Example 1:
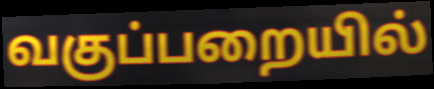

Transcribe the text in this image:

வகுப்பறையில்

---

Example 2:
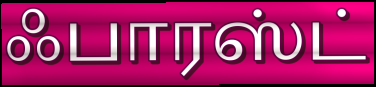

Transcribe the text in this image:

ஃபாரஸ்ட்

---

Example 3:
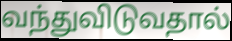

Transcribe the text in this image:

வந்துவிடுவதால்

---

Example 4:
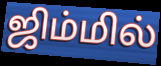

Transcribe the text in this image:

ஜிம்மில்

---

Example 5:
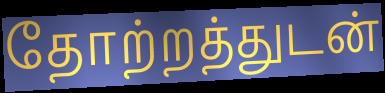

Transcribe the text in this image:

தோற்றத்துடன்